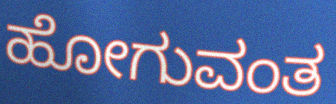
ಹೋಗುವಂತ